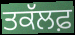
ਤਕੱਲਫ਼